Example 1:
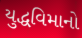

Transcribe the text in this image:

યુદ્ધવિમાનો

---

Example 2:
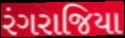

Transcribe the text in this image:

રંગરાજિયા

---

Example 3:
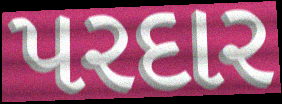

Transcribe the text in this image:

પરદાર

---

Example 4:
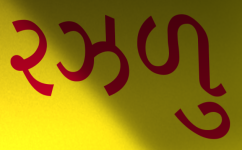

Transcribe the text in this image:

રઝળુ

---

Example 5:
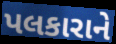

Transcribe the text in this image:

પલકારાને